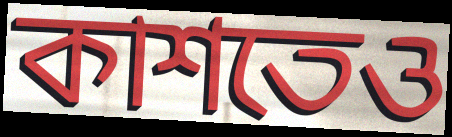
কাশতেও